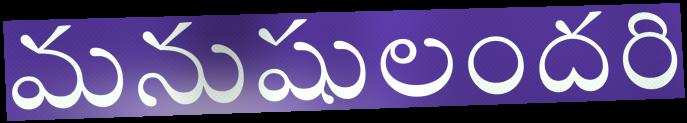
మనుషులందరి